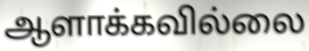
ஆளாக்கவில்லை